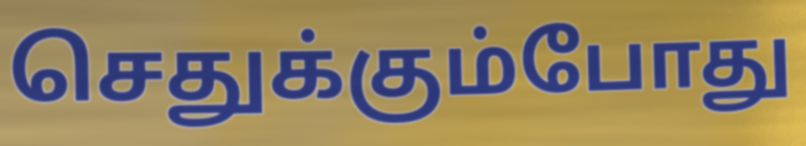
செதுக்கும்போது